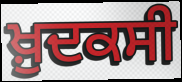
ਖ਼ੁਦਕਸੀ